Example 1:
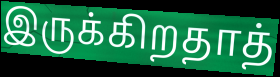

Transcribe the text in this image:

இருக்கிறதாத்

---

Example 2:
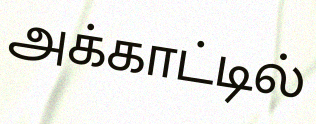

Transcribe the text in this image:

அக்காட்டில்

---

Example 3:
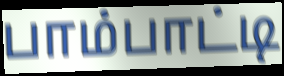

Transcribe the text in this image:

பாம்பாட்டி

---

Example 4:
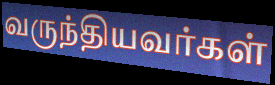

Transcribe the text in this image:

வருந்தியவர்கள்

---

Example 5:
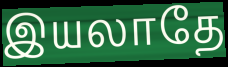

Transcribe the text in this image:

இயலாதே